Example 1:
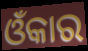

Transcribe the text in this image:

ଓଁକାର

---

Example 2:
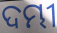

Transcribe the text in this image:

ଦମ୍ଭୀ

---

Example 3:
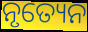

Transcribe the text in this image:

ନୃତ୍ୟେନ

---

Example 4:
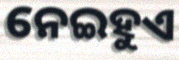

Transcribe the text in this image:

ନେଇହୁଏ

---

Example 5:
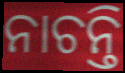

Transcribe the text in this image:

ନାଚନ୍ତି